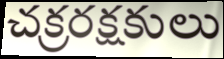
చక్రరక్షకులు